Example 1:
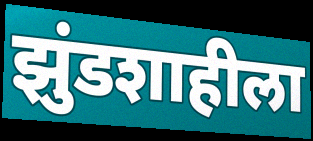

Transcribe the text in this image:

झुंडशाहीला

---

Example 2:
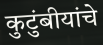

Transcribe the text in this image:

कुटुंबीयांचे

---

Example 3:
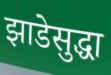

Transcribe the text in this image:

झाडेसुद्धा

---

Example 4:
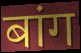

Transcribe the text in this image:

बांग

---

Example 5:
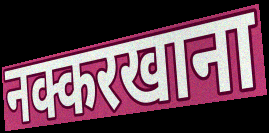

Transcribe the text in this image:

नक्करखाना